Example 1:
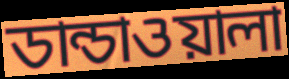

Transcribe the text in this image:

ডান্ডাওয়ালা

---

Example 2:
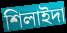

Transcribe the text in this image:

শিলাইদা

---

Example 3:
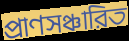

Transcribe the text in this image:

প্রাণসঞ্চারিত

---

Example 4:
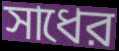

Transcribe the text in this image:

সাধের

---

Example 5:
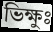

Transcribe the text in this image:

ভিক্ষুঃ